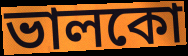
ভালকো